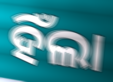
ହିଁଲା